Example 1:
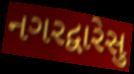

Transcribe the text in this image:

નગરદ્વારેસુ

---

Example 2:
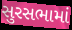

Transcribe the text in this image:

સુરસભામાં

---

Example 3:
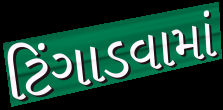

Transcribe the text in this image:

ટિંગાડવામાં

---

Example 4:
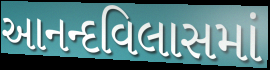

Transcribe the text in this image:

આનન્દવિલાસમાં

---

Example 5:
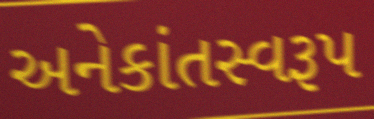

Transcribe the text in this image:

અનેકાંતસ્વરૂપ